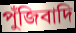
পুঁজিবাদি